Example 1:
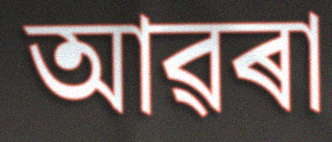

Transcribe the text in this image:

আৱৰা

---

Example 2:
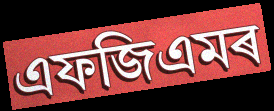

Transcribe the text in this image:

এফজিএমৰ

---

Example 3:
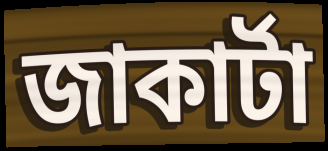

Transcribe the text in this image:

জাকাৰ্টা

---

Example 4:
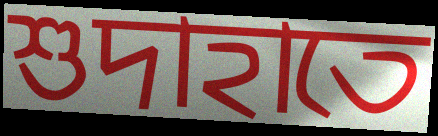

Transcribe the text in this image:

শুদাহাতে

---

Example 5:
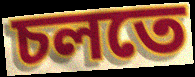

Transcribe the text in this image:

চলতে